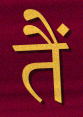
तैं